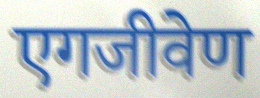
एगजीवेण